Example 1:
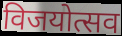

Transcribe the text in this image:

विजयोत्सव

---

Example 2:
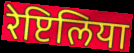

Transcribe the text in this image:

रेप्टिलिया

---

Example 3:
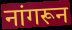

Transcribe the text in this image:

नांगरून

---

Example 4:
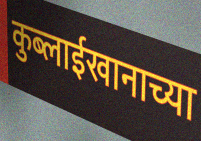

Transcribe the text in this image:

कुब्लाईखानाच्या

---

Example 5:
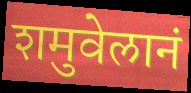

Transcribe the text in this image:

शमुवेलानं